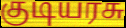
குடியரசு